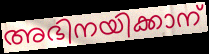
അഭിനയിക്കാന്